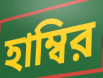
হাম্বির